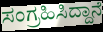
ಸಂಗ್ರಹಿಸಿದ್ದಾನೆ